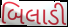
બિલાડી